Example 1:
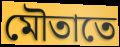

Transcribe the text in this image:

মৌতাতে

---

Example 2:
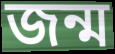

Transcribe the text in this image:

জন্ম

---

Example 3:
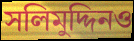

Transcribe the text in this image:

সলিমুদ্দিনও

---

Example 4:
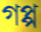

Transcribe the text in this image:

গপ্প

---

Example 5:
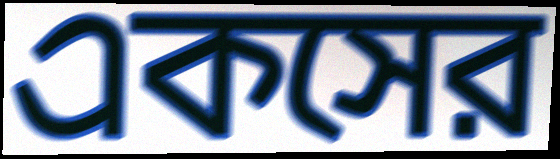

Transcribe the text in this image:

একসের